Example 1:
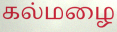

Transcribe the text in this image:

கல்மழை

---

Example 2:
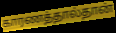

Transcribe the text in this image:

காரணத்தால்தான்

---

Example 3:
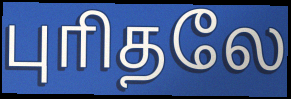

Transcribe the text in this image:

புரிதலே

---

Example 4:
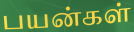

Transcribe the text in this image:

பயன்கள்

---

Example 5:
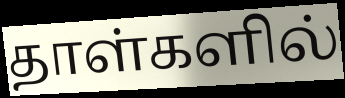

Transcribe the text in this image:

தாள்களில்